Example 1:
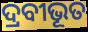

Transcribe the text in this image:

ଦ୍ରବୀଭୂତ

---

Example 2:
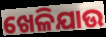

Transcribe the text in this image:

ଖେଳିଯାଉ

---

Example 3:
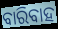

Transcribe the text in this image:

ବାରିବାହ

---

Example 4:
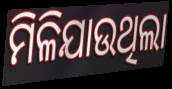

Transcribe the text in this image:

ମିଳିଯାଉଥିଲା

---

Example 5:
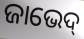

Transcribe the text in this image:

ଜାଭେଦ୍